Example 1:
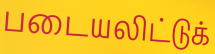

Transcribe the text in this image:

படையலிட்டுக்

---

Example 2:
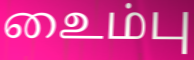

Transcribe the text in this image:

உைம்பு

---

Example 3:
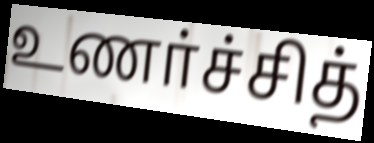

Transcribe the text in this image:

உணர்ச்சித்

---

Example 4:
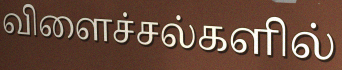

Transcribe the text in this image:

விளைச்சல்களில்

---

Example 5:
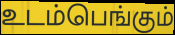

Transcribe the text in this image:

உடம்பெங்கும்